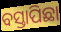
ବସ୍ତାପିଛା